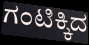
ಗಂಟಿಕ್ಕಿದ